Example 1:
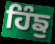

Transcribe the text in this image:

ਹਿੰਙੁ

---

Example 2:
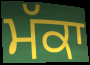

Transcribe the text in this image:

ਮੱਕਾ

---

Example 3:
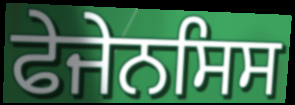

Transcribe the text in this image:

ਫੇਜੇਨਸਿਸ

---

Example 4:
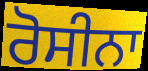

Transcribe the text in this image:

ਰੋਸੀਨਾ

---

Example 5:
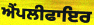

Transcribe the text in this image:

ਐਂਪਲੀਫਾਇਰ